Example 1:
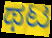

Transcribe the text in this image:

ಥಟ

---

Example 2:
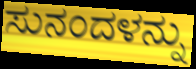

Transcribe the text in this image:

ಸುನಂದಳನ್ನು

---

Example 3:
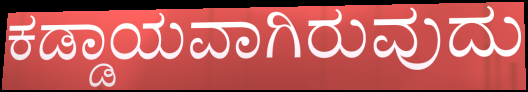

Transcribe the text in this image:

ಕಡ್ಡಾಯವಾಗಿರುವುದು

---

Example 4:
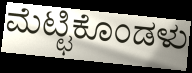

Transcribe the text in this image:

ಮೆಟ್ಟಿಕೊಂಡಳು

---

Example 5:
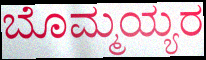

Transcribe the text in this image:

ಬೊಮ್ಮಯ್ಯರ